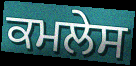
ਕਮਲੇਸ